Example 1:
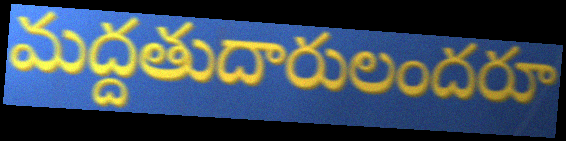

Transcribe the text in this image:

మద్దతుదారులందరూ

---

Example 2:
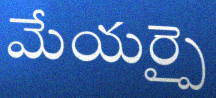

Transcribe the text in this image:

మేయర్పై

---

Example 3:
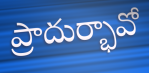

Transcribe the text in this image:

ప్రాదుర్భావో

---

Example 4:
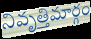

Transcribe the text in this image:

నివృత్తిమార్గం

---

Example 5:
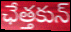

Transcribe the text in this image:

ఛేత్తకున్